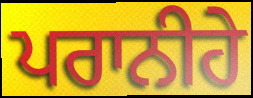
ਪਰਾਨੀਹੇ